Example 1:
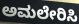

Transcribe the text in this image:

ಅಮಲೇರಿಸಿ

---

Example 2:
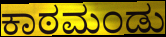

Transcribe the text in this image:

ಕಾಠಮಂಡು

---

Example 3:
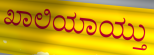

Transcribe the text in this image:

ಖಾಲಿಯಾಯ್ತು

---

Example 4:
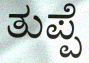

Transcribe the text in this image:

ತುಪ್ಪೆ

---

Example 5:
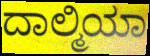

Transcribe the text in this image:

ದಾಲ್ಮಿಯಾ